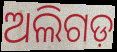
ଅଲିଗଡ଼